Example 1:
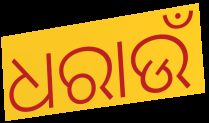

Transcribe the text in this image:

ଧରାଉଁ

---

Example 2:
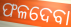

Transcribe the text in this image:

ଫଳଦେବା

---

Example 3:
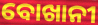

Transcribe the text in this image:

ବୋଖାନୀ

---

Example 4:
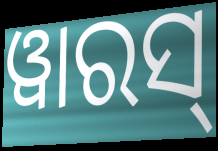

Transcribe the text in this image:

ୱାରସ୍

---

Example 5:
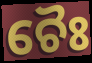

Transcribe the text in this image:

ଚୈଃ